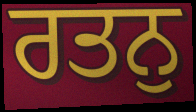
ਰਤਨੁ